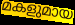
മകളുമായ